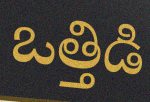
ఒత్తిడి